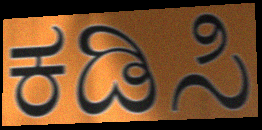
ಕಡಿಸಿ